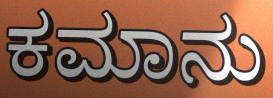
ಕಮಾನು